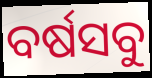
ବର୍ଷସବୁ